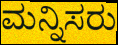
ಮನ್ನಿಸರು